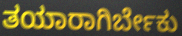
ತಯಾರಾಗಿರ್ಬೇಕು